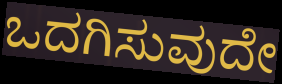
ಒದಗಿಸುವುದೇ